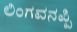
ಲಿಂಗವನಪ್ಪಿ